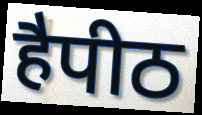
हैपीठ